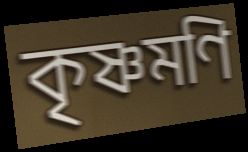
কৃষ্ণমণি